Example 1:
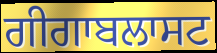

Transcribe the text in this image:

ਗੀਗਾਬਲਾਸਟ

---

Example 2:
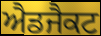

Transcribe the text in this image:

ਐਡਜੈਕਟ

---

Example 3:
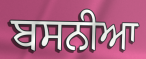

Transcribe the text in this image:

ਬਸਨੀਆ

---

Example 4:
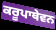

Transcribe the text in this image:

ਕਰੂਪਾਥੇਵਨ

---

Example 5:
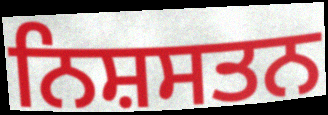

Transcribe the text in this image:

ਨਿਸ਼ਸਤਨ